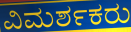
ವಿಮರ್ಶಕರು